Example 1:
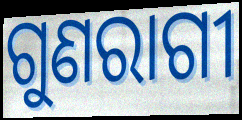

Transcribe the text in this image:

ଗୁଣରାଗୀ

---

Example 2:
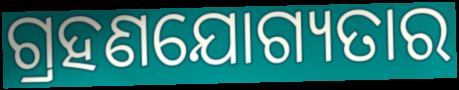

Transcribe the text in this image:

ଗ୍ରହଣଯୋଗ୍ୟତାର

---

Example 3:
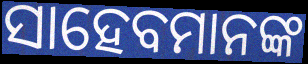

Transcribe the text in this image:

ସାହେବମାନଙ୍କ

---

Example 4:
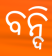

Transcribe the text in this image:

ବନ୍ଦି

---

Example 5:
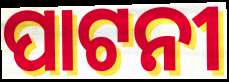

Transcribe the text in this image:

ପାଟନୀ